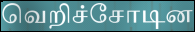
வெறிச்சோடின